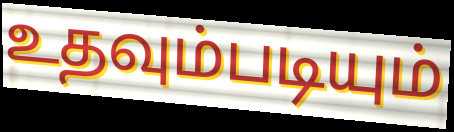
உதவும்படியும்